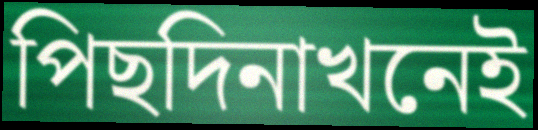
পিছদিনাখনেই